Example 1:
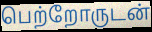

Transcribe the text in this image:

பெற்றோருடன்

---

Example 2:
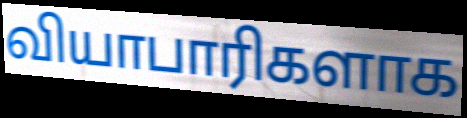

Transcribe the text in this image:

வியாபாரிகளாக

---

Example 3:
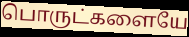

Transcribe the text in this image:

பொருட்களையே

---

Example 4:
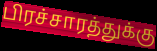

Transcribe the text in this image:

பிரச்சாரத்துக்கு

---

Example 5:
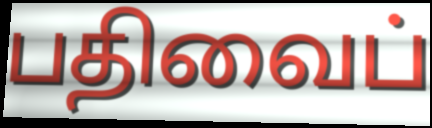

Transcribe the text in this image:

பதிவைப்